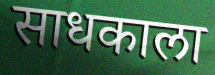
साधकाला